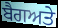
ਬੈਗਅਤੇ